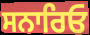
ਸਨਾਰਿਓ